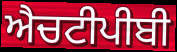
ਐਚਟੀਪੀਬੀ